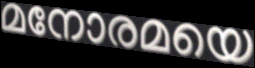
മനോരമയെ